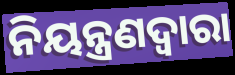
ନିୟନ୍ତ୍ରଣଦ୍ବାରା